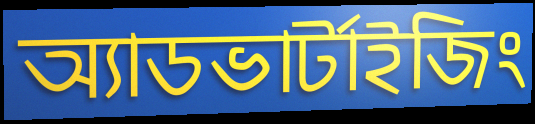
অ্যাডভার্টাইজিং